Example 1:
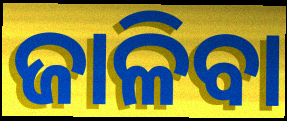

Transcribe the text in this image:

ଜାଳିବା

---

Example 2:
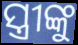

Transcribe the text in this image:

ସ୍ତ୍ରୀଙ୍କୁ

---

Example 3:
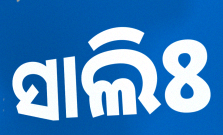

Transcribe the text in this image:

ସାଲିଃ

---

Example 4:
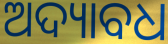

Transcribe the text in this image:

ଅଦ୍ୟାବଧ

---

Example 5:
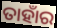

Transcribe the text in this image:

ତାହାଁର